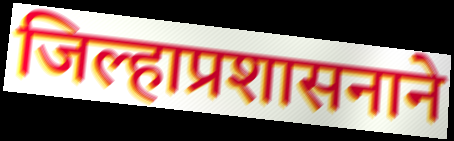
जिल्हाप्रशासनाने